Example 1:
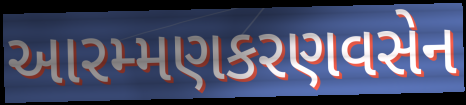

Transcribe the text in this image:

આરમ્મણકરણવસેન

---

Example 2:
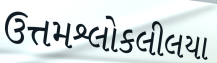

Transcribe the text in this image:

ઉત્તમશ્લોકલીલયા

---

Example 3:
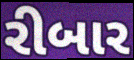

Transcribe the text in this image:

રીબાર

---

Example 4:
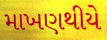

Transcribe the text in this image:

માખણથીયે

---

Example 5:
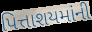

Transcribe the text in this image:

પિત્તાશયમાંની